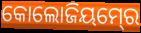
କୋଲୋଜିୟମ୍‍ରେ